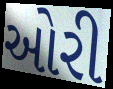
ઓરી